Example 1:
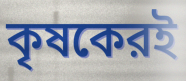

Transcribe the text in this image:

কৃষকেরই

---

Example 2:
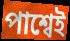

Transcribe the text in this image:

পাশ্বেই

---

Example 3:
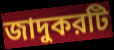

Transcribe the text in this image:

জাদুকরটি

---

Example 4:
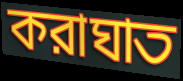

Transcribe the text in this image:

করাঘাত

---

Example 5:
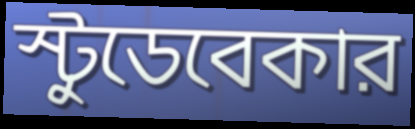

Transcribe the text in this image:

স্টুডেবেকার